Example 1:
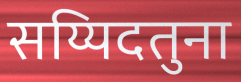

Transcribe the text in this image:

सय्यिदतुना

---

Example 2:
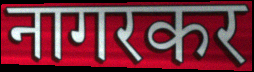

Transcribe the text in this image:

नागरकर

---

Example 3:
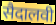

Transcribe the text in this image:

सैदालवी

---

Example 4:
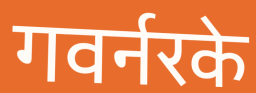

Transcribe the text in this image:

गवर्नरके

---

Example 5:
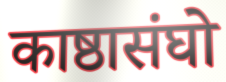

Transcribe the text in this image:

काष्ठासंघो